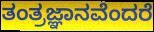
ತಂತ್ರಜ್ಞಾನವೆಂದರೆ